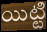
యిట్టి